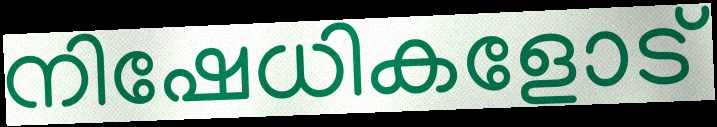
നിഷേധികളോട്